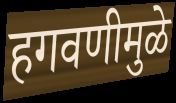
हगवणीमुळे